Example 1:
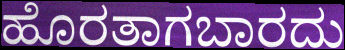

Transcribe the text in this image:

ಹೊರತಾಗಬಾರದು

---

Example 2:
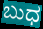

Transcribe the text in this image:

ಬುಧ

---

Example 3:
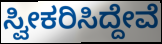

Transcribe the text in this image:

ಸ್ವೀಕರಿಸಿದ್ದೇವೆ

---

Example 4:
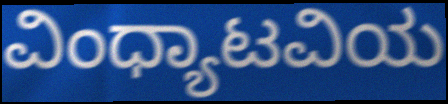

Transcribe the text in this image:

ವಿಂಧ್ಯಾಟವಿಯ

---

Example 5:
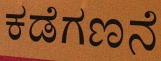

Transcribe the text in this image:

ಕಡೆಗಣನೆ